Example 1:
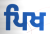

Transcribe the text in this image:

ਪਿਖ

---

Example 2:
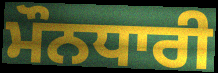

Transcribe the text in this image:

ਮੌਨਧਾਰੀ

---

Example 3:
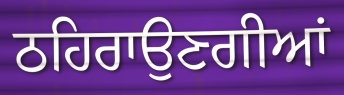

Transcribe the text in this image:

ਠਹਿਰਾਉਣਗੀਆਂ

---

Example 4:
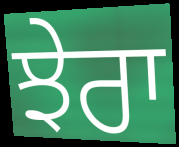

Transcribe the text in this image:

ਝੇਰਾ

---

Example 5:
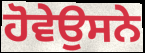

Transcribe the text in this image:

ਹੋਵੇਉਸਨੇ